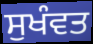
ਸੁਖੰਵਤ